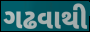
ગઢવાથી